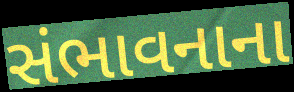
સંભાવનાના